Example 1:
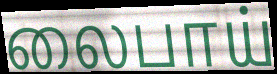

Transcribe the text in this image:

லைபாய்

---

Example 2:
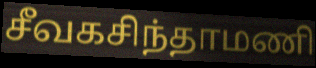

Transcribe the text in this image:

சீவகசிந்தாமணி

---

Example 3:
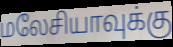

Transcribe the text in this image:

மலேசியாவுக்கு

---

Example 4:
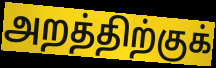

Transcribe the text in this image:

அறத்திற்குக்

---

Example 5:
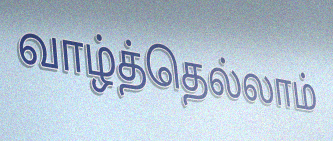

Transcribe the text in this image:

வாழ்த்தெல்லாம்